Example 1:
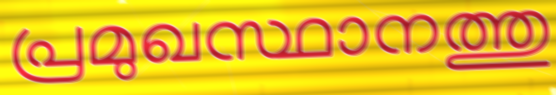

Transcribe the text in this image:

പ്രമുഖസ്ഥാനത്തു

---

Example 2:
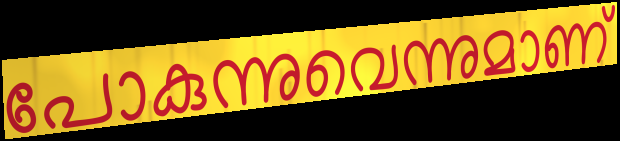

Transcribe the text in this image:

പോകുന്നുവെന്നുമാണ്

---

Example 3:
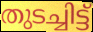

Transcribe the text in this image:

തുടച്ചിട്ട്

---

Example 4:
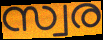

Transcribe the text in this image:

സ്വര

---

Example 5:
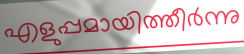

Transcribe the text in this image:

എളുപ്പമായിത്തീർന്നു